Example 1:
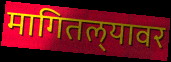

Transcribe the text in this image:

मागितल्यावर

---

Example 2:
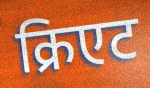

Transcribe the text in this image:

क्रिएट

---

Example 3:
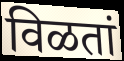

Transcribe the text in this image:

विळतां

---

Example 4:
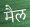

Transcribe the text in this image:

मैल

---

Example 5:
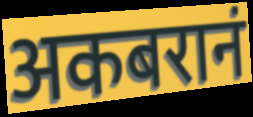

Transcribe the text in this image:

अकबरानं